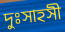
দুঃসাহসী